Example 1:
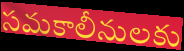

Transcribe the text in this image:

సమకాలీనులకు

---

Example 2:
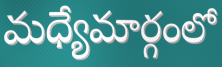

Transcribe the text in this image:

మధ్యేమార్గంలో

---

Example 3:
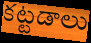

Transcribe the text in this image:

కట్టడాలు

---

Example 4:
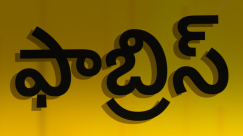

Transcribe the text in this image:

ఫాబ్రిస్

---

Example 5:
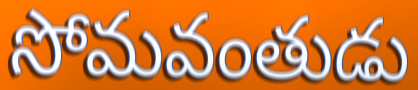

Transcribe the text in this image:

సోమవంతుడు